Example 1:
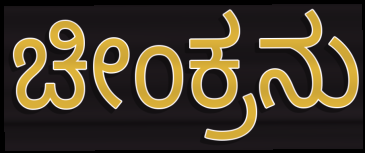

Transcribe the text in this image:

ಚೀಂಕ್ರನು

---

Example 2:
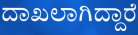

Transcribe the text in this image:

ದಾಖಲಾಗಿದ್ದಾರೆ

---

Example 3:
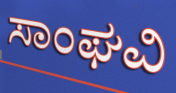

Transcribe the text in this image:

ಸಾಂಘವಿ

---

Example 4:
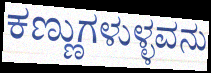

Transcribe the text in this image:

ಕಣ್ಣುಗಳುಳ್ಳವನು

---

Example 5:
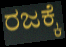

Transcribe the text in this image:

ರಜಕ್ಕೆ